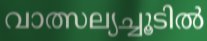
വാത്സല്യച്ചൂടിൽ